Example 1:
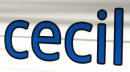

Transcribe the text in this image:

cecil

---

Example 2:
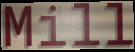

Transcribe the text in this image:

Mill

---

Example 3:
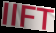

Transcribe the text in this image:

IIFT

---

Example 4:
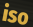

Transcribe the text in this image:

iso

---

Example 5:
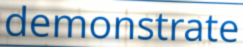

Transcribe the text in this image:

demonstrate